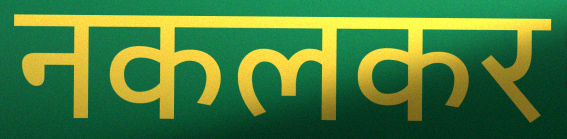
नकलकर